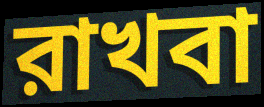
রাখবা